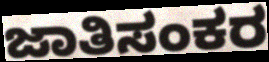
ಜಾತಿಸಂಕರ